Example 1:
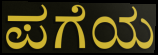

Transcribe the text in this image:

ಪಗೆಯ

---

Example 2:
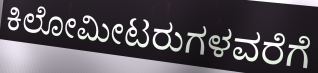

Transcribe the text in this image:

ಕಿಲೋಮೀಟರುಗಳವರೆಗೆ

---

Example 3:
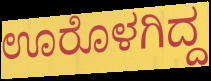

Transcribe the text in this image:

ಊರೊಳಗಿದ್ದ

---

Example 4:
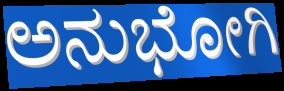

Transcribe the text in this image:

ಅನುಭೋಗಿ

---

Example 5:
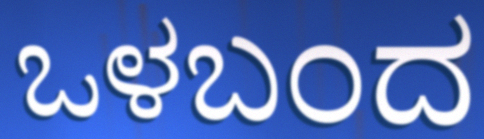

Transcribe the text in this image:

ಒಳಬಂದ